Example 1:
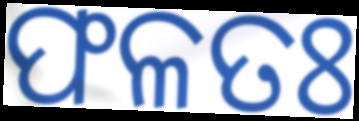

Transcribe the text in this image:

ଫଳତଃ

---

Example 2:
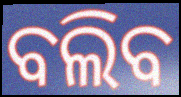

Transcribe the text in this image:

ବଲିବ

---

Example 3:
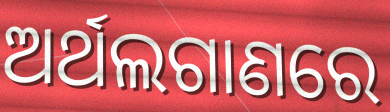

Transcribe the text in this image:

ଅର୍ଥଲଗାଣରେ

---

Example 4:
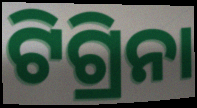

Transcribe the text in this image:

ଟିଗ୍ରିନା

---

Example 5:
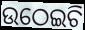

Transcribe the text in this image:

ଉଠେଇଚି